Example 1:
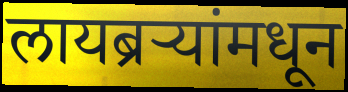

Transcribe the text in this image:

लायब्रऱ्यांमधून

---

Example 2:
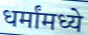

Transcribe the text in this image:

धर्मांमध्ये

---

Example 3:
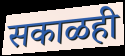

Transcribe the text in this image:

सकाळही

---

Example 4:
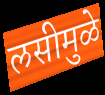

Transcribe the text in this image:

लसीमुळे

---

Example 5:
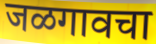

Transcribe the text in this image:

जळगावचा